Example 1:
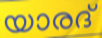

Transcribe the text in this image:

യാരദ്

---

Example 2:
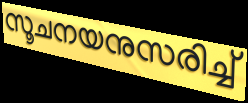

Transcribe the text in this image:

സൂചനയനുസരിച്ച്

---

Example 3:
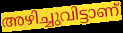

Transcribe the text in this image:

അഴിച്ചുവിട്ടാണ്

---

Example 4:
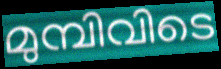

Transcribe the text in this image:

മുമ്പിവിടെ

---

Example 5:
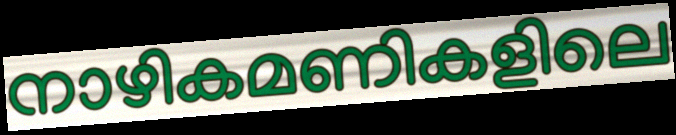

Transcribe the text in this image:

നാഴികമണികളിലെ